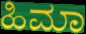
ಹಿಮಾ